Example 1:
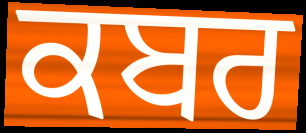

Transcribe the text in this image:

ਕਬਰ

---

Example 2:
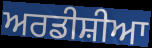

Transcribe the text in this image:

ਅਰਡੀਸ਼ੀਆ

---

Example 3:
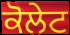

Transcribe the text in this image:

ਕੋਲੇਟ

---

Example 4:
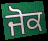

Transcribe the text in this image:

ਜੋਕ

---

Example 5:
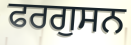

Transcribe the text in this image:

ਫਰਗੁਸਨ